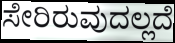
ಸೇರಿರುವುದಲ್ಲದೆ